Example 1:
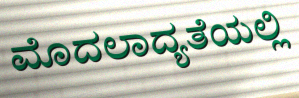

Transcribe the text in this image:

ಮೊದಲಾದ್ಯತೆಯಲ್ಲಿ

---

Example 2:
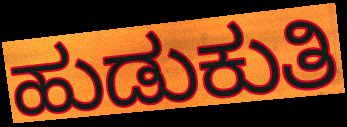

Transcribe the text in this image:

ಹುಡುಕುತಿ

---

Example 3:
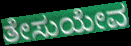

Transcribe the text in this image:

ತೇಸುಯೇವ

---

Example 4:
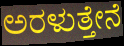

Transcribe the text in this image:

ಅರಳುತ್ತೇನೆ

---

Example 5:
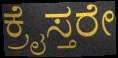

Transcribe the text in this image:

ಕ್ರೈಸ್ತರೇ